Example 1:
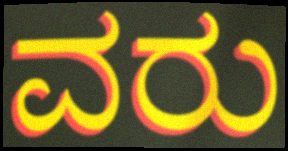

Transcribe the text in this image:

ವರು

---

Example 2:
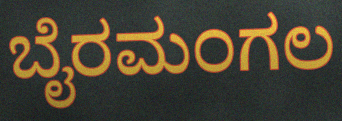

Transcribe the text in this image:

ಬೈರಮಂಗಲ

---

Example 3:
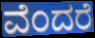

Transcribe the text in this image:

ವೆಂದರೆ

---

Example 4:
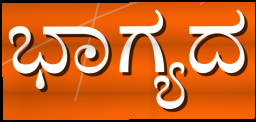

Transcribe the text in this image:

ಭಾಗ್ಯದ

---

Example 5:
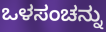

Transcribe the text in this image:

ಒಳಸಂಚನ್ನು